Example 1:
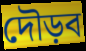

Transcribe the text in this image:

দৌড়ব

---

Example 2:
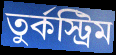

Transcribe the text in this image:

তুর্কস্ট্রিম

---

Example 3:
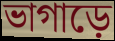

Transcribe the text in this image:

ভাগাড়ে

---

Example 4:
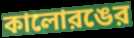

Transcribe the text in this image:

কালোরঙের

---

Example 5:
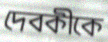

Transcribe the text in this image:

দেবকীকে